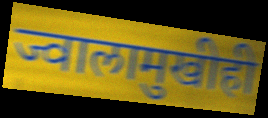
ज्वालामुखीही